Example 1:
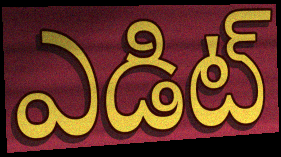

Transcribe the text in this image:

ఎడిట్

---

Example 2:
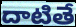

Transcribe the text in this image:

దాటితే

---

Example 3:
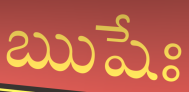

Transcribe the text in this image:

ఋషేః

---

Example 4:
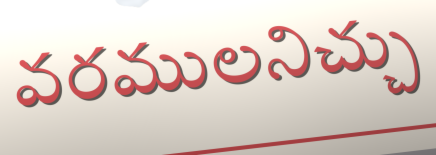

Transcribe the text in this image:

వరములనిచ్చు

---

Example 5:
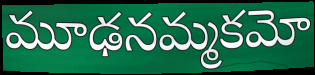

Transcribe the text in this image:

మూఢనమ్మకమో